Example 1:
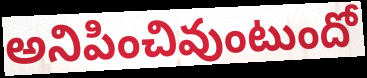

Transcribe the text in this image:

అనిపించివుంటుందో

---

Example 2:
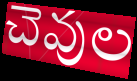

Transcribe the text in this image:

చెవుల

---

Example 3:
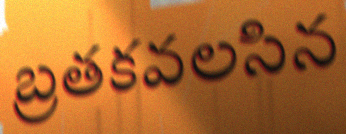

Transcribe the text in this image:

బ్రతకవలసిన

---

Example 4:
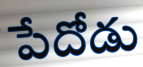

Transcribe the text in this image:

పేదోడు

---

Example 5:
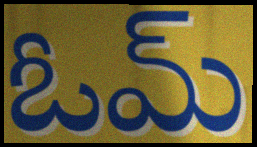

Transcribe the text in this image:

ఓమ్